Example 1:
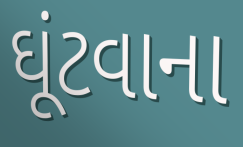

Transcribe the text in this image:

ઘૂંટવાના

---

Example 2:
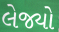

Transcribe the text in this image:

લેજ્યો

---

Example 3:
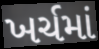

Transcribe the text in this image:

ખર્ચમાં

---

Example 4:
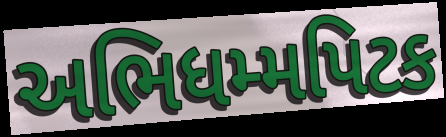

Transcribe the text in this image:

અભિધમ્મપિટક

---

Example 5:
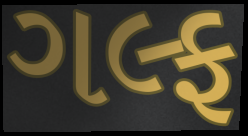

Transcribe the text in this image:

ગલ્ફ